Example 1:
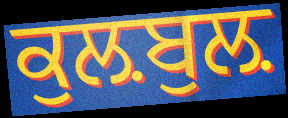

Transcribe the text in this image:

ਕੁਲ਼ਬੁਲ਼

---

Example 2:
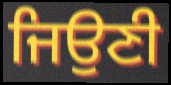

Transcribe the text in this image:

ਜਿਉਣੀ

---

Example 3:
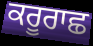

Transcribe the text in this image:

ਕਰੂਰਾਛ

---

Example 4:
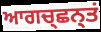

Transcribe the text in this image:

ਆਗਚ੍ਛਨ੍ਤਂ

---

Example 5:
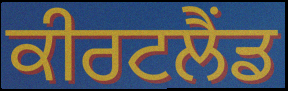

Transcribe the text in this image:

ਕੀਰਟਲੈਂਡ